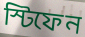
স্টিফেন